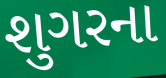
શુગરના